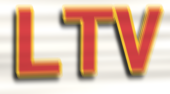
LTV